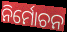
ନିର୍ମୋଚନ